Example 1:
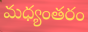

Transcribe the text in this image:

మధ్యంతరం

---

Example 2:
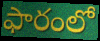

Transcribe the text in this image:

ఫారంలో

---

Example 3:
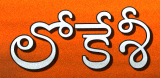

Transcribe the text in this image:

లోకేశీ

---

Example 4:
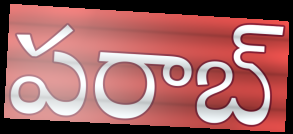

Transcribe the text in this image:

పరాబ్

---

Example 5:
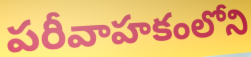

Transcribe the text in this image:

పరీవాహకంలోని